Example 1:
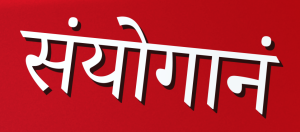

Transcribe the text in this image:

संयोगानं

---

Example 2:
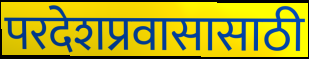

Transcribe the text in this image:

परदेशप्रवासासाठी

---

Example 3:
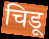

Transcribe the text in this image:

चिडू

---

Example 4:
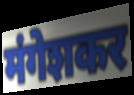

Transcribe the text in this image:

मंगेशकर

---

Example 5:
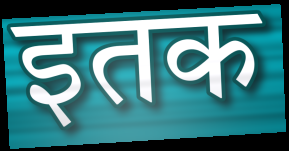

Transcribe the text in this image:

इतक